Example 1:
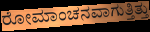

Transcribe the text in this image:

ರೋಮಾಂಚನವಾಗುತ್ತಿತ್ತು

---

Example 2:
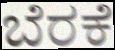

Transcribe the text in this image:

ಬೆರಕೆ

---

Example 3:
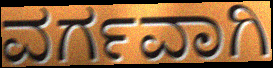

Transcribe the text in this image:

ವರ್ಗವಾಗಿ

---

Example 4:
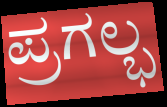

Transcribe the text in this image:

ಪ್ರಗಲ್ಭ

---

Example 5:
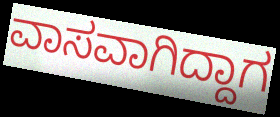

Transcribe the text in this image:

ವಾಸವಾಗಿದ್ದಾಗ